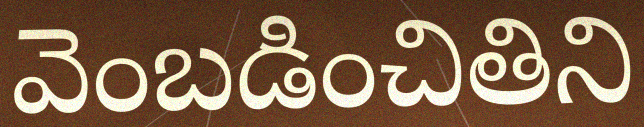
వెంబడించితిని